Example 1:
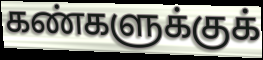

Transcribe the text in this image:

கண்களுக்குக்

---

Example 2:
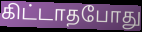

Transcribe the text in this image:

கிட்டாதபோது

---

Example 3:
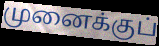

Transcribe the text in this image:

முனைக்குப்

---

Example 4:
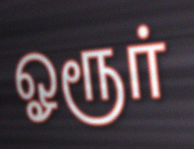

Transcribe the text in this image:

ஓரூர்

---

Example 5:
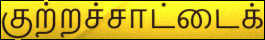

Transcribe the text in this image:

குற்றச்சாட்டைக்